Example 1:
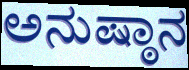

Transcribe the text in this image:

ಅನುಷ್ಠಾನ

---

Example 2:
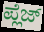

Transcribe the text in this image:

ಪ್ಲೆಜ್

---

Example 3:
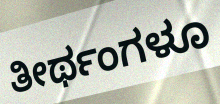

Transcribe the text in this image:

ತೀರ್ಥಂಗಳೂ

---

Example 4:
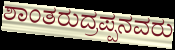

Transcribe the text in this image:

ಶಾಂತರುದ್ರಪ್ಪನವರು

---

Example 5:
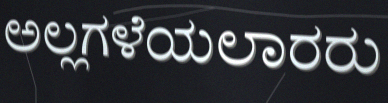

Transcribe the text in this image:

ಅಲ್ಲಗಳೆಯಲಾರರು